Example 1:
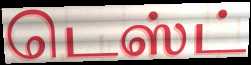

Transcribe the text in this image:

டெஸ்ட்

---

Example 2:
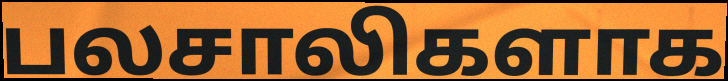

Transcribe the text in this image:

பலசாலிகளாக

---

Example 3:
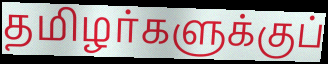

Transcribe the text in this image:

தமிழர்களுக்குப்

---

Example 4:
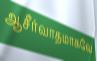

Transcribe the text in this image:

ஆசீர்வாதமாகவே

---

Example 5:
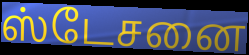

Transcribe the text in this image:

ஸ்டேசனை